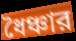
ধৈঞ্চার